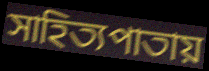
সাহিত্যপাতায়